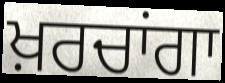
ਖ਼ਰਚਾਂਗਾ